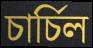
চার্চিল